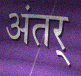
अंतर्